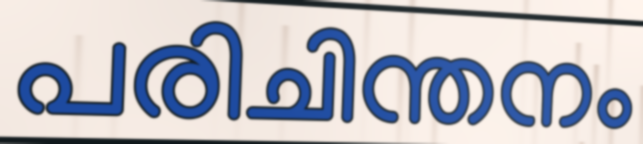
പരിചിന്തനം